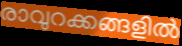
രാവുറക്കങ്ങളിൽ